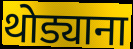
थोड्याना